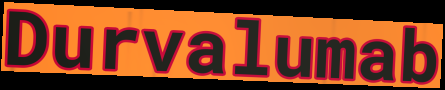
Durvalumab